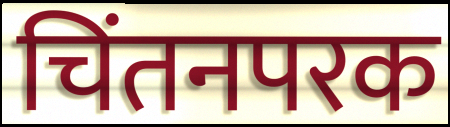
चिंतनपरक